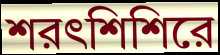
শরৎশিশিরে